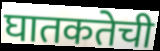
घातकतेची